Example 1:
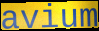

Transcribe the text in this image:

avium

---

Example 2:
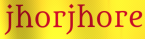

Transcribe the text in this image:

jhorjhore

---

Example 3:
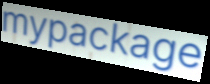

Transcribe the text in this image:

mypackage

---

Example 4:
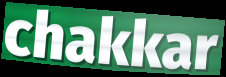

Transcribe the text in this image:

chakkar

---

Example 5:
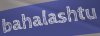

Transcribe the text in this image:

bahalashtu